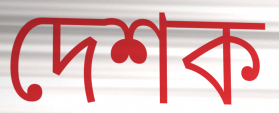
দেশক